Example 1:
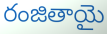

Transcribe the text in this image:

రంజితాయై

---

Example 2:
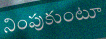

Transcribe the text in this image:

నింపుకుంటూ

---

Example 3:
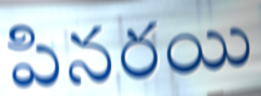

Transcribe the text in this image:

పినరయి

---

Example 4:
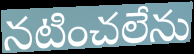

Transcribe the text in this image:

నటించలేను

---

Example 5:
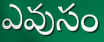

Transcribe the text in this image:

ఎవుసం